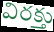
విరక్తు